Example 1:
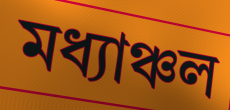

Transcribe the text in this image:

মধ্যাঞ্চল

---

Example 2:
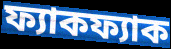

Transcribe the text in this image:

ফ্যাকফ্যাক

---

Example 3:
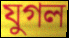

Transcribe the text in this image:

যুগল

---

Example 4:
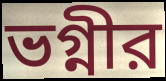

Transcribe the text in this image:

ভগ্নীর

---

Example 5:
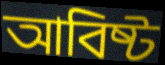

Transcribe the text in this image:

আবিষ্ট